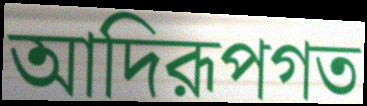
আদিরূপগত